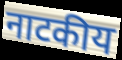
नाटकीय